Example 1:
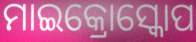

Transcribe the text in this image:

ମାଇକ୍ରୋସ୍କୋପ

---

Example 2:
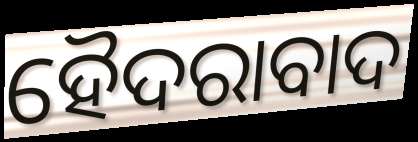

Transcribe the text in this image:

ହୈଦରାବାଦ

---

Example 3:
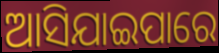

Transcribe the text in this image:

ଆସିଯାଇପାରେ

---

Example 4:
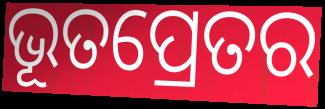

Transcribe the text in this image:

ଭୂତପ୍ରେତର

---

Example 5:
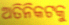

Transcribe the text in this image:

ଅତିନିକଟକୁ